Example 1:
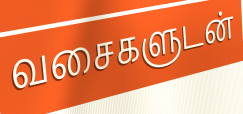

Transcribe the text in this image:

வசைகளுடன்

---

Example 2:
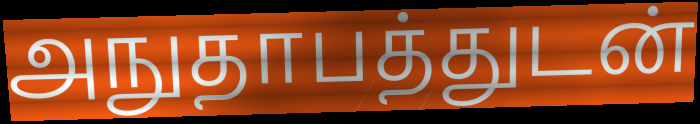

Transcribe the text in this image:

அநுதாபத்துடன்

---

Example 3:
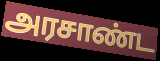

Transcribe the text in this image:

அரசாண்ட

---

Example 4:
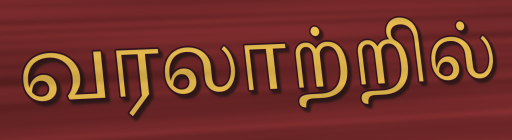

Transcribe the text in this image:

வரலாற்றில்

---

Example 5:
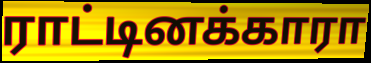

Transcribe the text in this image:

ராட்டினக்காரா